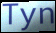
Tyn